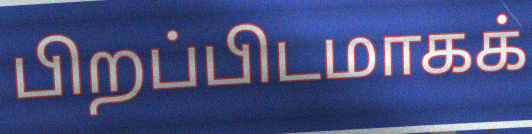
பிறப்பிடமாகக்